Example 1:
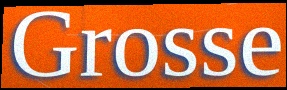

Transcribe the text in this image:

Grosse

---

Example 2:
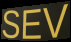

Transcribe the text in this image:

SEV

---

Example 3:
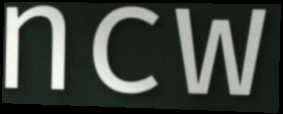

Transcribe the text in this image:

ncw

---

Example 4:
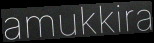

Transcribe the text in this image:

amukkira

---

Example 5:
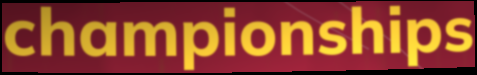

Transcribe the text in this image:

championships